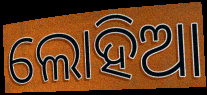
ଲୋହିଆ